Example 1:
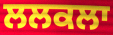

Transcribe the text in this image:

ਲਲਕਲਾ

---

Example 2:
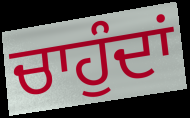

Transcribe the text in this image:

ਚਾਹੁੰਦਾਂ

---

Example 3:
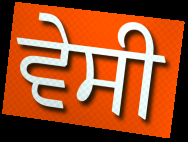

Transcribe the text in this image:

ਵੇਸੀ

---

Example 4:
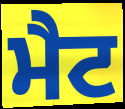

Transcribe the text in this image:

ਮੈਟ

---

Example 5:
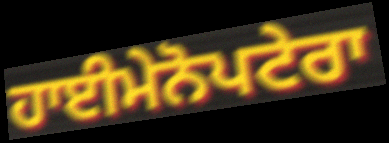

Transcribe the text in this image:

ਹਾਈਮੇਨੋਪਟੇਰਾ